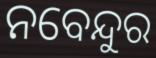
ନବେନ୍ଦୁର